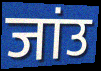
जांउ